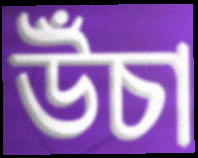
উঁচা